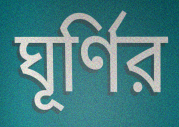
ঘূর্ণির